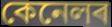
কেনেলৰ